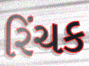
રિંચક